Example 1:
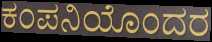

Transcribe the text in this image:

ಕಂಪನಿಯೊಂದರ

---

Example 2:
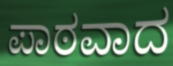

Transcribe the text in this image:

ಪಾಠವಾದ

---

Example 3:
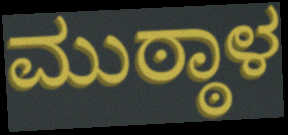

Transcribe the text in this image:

ಮುಠ್ಠಾಳ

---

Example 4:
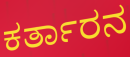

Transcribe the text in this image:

ಕರ್ತಾರನ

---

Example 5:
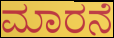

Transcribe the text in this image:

ಮಾರನೆ